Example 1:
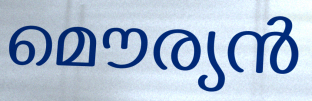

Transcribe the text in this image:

മൌര്യൻ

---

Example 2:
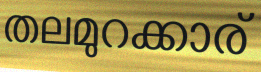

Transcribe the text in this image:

തലമുറക്കാര്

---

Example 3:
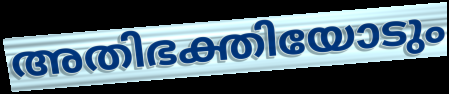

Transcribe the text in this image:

അതിഭക്തിയോടും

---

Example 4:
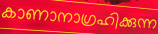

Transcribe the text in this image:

കാണാനാഗ്രഹിക്കുന്ന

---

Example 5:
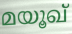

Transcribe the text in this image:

മയൂഖ്